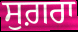
ਸੁਗ਼ਰਾ